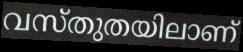
വസ്തുതയിലാണ്